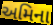
અમિના